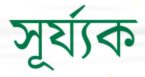
সূৰ্য্যক